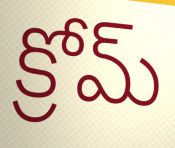
క్రోమ్